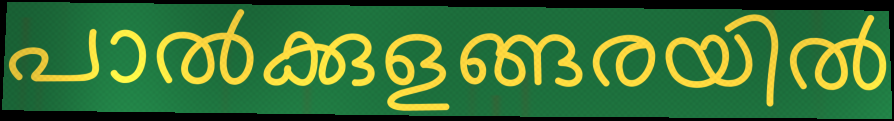
പാൽക്കുളങ്ങരയിൽ